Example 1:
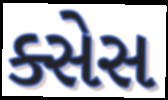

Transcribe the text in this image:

ક્સેસ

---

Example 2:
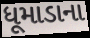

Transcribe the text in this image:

ધૂમાડાના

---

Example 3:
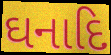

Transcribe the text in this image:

ઘનાદિ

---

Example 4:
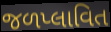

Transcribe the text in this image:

જળપ્લાવિત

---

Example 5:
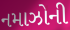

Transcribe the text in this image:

નમાઝોની